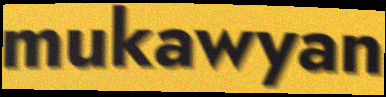
mukawyan